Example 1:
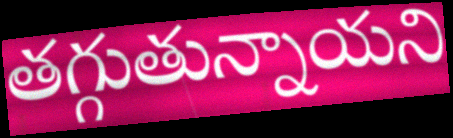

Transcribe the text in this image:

తగ్గుతున్నాయని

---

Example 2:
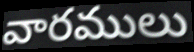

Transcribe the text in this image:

వారములు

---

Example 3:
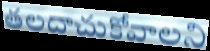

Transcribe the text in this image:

తలదాచుకోవాలని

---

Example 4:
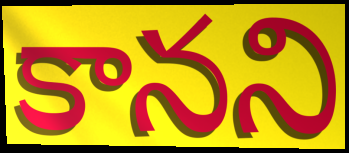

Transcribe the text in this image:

కానని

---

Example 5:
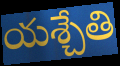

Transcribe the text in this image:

యశ్చేతి